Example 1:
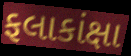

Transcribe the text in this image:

ફલાકાંક્ષા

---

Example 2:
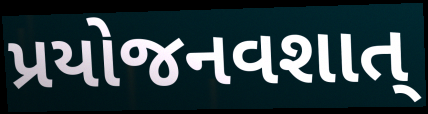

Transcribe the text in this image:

પ્રયોજનવશાત્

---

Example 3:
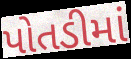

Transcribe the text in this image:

પોતડીમાં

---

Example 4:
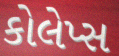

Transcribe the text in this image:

કોલેપ્સ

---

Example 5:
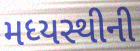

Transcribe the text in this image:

મધ્યસ્થીની